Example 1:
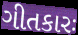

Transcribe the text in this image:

ગીતકારઃ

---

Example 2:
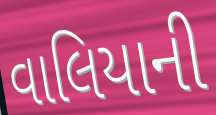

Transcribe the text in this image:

વાલિયાની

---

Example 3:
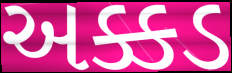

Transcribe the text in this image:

અક્કડ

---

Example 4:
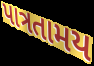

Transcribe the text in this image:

પાત્રતામય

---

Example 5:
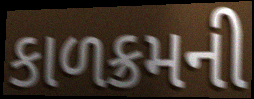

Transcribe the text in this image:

કાળક્રમની